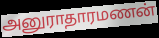
அனுராதாரமணன்